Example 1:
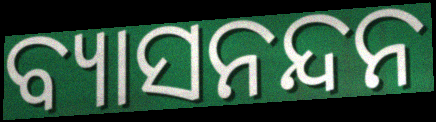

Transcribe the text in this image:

ବ୍ୟାସନନ୍ଦନ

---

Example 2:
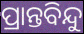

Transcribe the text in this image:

ପ୍ରାନ୍ତବିନ୍ଦୁ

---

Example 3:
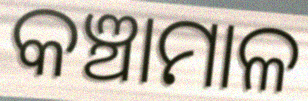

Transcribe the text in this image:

କଞ୍ଚାମାଳ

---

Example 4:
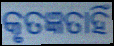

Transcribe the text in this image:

କୃତଜ୍ଞତାହିଁ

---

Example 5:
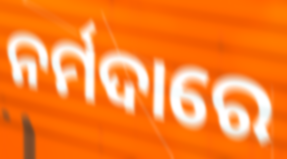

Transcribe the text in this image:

ନର୍ମଦାରେ